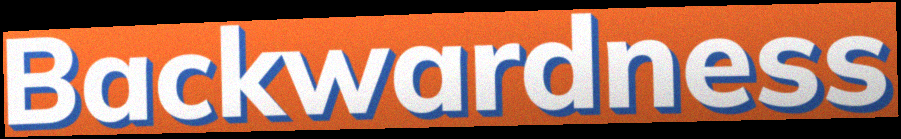
Backwardness